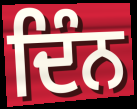
ਦਿੰਨ